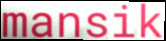
mansik